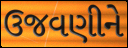
ઉજવણીને